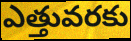
ఎత్తువరకు